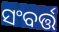
ସଂବର୍ତ୍ତ